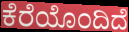
ಕೆರೆಯೊಂದಿದೆ